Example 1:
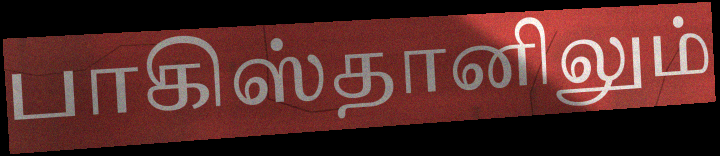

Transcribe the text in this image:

பாகிஸ்தானிலும்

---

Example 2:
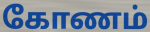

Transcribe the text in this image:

கோணம்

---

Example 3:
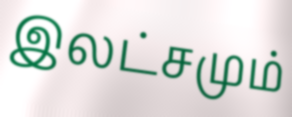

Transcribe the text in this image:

இலட்சமும்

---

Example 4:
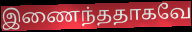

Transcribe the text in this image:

இணைந்ததாகவே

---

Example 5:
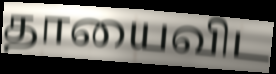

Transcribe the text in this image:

தாயைவிட